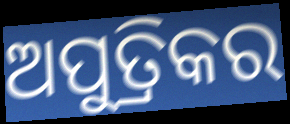
ଅପୁତ୍ରିକର